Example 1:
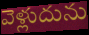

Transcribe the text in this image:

వెళ్లుదును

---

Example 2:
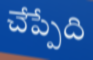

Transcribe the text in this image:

చేప్పేది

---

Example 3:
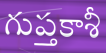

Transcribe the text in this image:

గుప్తకాశీ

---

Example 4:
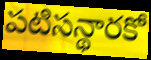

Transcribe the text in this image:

పటిసన్థారకో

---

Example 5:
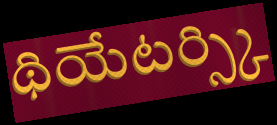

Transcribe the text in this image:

థియేటర్స్కి